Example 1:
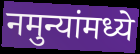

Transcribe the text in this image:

नमुन्यांमध्ये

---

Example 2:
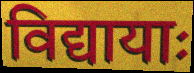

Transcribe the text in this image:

विद्यायाः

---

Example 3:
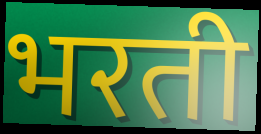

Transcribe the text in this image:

भरती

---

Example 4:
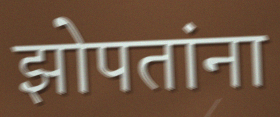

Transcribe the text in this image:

झोपतांना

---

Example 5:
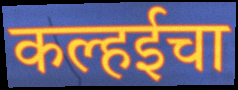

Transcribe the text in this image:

कल्हईचा